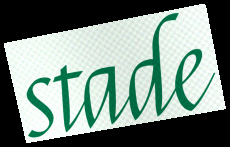
stade